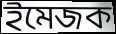
ইমেজক